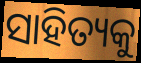
ସାହିତ୍ୟକୁ